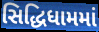
સિદ્ધિધામમાં